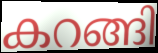
കറങ്ങി